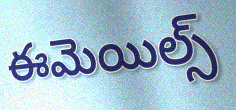
ఈమెయిల్స్